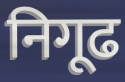
निगूढ